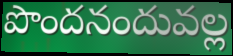
పొందనందువల్ల